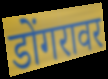
डोंगरावर